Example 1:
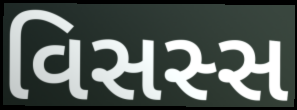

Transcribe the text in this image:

વિસસ્સ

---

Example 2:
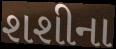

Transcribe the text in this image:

શશીના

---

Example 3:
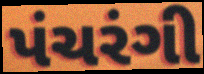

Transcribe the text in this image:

પંચરંગી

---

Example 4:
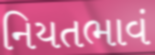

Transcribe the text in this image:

નિયતભાવં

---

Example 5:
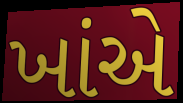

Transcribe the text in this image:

ખાંએ